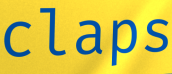
claps